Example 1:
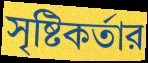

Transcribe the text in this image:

সৃষ্টিকর্তার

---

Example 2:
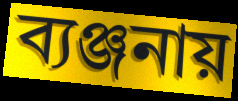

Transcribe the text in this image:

ব্যঞ্জনায়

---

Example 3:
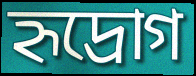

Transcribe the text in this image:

হৃদ্রোগ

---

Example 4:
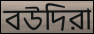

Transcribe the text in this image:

বউদিরা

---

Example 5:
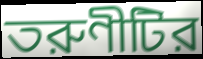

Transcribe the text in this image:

তরুণীটির